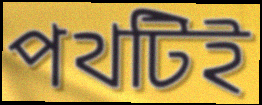
পথটিই